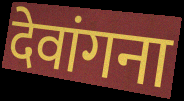
देवांगना